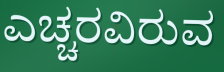
ಎಚ್ಚರವಿರುವ